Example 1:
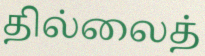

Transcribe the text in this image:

தில்லைத்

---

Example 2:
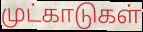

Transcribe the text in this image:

முட்காடுகள்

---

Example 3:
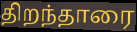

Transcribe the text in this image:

திறந்தாரை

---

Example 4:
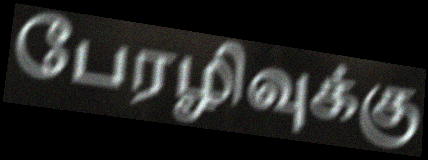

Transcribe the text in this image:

பேரழிவுக்கு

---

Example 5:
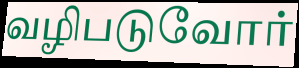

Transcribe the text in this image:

வழிபடுவோர்